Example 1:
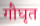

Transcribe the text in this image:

गौघृत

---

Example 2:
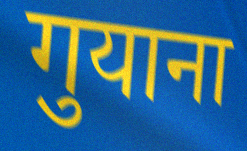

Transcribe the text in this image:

गुयाना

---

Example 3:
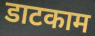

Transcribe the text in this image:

डाटकाम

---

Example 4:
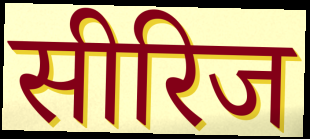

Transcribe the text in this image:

सीरिज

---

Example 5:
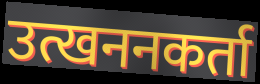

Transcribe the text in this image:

उत्खननकर्ता